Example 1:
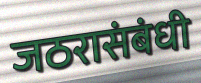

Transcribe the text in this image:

जठरासंबंधी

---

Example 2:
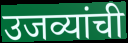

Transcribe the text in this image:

उजव्यांची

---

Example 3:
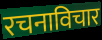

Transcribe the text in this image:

रचनाविचार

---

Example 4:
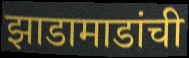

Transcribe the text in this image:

झाडामाडांची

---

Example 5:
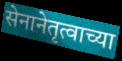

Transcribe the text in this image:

सेनानेतृत्वाच्या